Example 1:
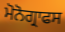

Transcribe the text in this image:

ਮੋਨੋਗ੍ਰਾਫਸ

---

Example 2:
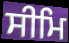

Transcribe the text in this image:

ਸੀਮਿ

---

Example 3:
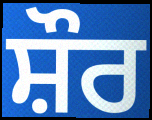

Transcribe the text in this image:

ਸ਼ੌਰ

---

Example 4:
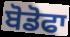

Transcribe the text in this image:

ਬੋਡੋਫਾ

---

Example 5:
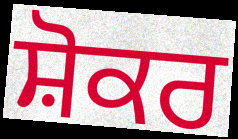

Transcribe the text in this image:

ਸ਼ੋਕਰ